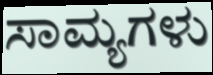
ಸಾಮ್ಯಗಳು